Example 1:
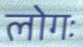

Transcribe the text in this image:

लोगः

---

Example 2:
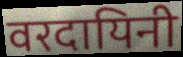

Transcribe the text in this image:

वरदायिनी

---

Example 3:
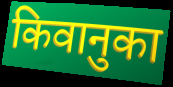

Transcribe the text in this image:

किवानुका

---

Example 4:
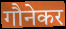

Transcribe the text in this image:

गौनेकर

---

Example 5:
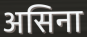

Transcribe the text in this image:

असिना